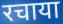
रचाया